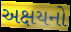
અક્ષયનો